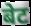
बेट